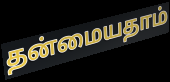
தன்மையதாம்